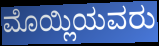
ಮೊಯ್ಲಿಯವರು